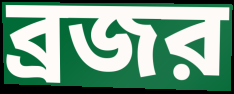
ব্রজর